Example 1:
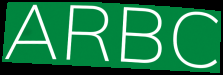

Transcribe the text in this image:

ARBC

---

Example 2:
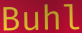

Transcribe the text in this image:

Buhl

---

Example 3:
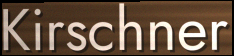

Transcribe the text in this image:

Kirschner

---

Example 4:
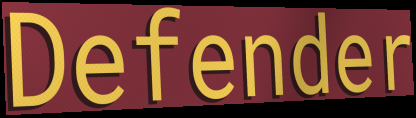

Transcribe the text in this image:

Defender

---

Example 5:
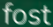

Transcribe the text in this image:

fost